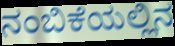
ನಂಬಿಕೆಯಲ್ಲಿನ